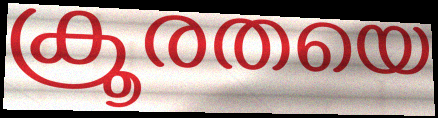
ക്രൂരതയെ